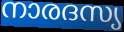
നാരദസ്യ